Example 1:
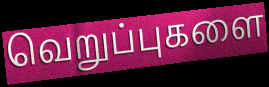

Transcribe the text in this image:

வெறுப்புகளை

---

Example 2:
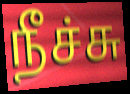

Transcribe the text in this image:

நீச்சு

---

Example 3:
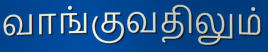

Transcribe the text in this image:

வாங்குவதிலும்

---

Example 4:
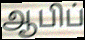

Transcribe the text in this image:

ஆபிப்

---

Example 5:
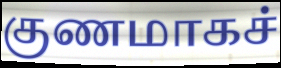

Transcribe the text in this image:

குணமாகச்